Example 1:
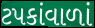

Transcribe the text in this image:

ટપકાંવાળાં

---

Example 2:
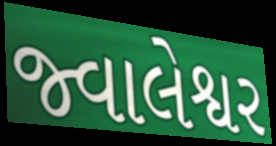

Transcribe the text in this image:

જ્વાલેશ્વર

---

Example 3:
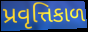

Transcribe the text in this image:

પ્રવૃત્તિકાળ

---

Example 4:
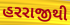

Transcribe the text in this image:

હરરાજીથી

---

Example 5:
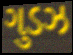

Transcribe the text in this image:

ગુડઝ